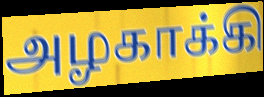
அழகாக்கி